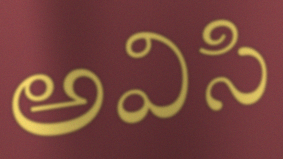
అవిసి